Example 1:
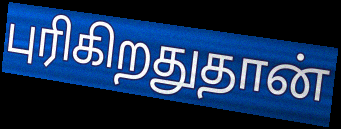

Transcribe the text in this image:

புரிகிறதுதான்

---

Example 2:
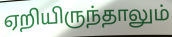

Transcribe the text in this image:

ஏறியிருந்தாலும்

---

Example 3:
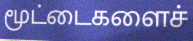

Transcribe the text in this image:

மூட்டைகளைச்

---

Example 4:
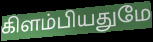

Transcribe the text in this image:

கிளம்பியதுமே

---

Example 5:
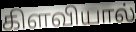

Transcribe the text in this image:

கிளவியால்